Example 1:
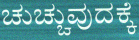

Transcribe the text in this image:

ಚುಚ್ಚುವುದಕ್ಕೆ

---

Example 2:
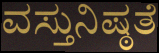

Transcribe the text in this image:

ವಸ್ತುನಿಷ್ಠತೆ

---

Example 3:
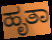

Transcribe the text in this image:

ಹೃತಾ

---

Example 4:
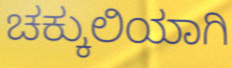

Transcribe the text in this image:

ಚಕ್ಕುಲಿಯಾಗಿ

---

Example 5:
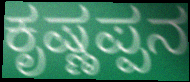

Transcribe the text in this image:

ಕೃಷ್ಣಪ್ಪನ